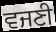
ਵਜਣੀ